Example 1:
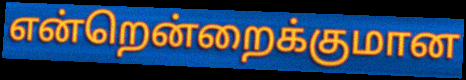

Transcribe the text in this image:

என்றென்றைக்குமான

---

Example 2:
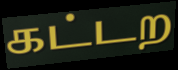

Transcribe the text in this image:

கட்டற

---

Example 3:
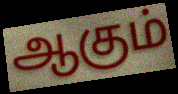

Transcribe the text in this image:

ஆகும்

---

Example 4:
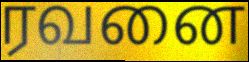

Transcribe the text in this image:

ரவனை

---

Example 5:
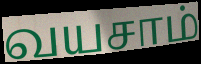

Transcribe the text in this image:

வயசாம்